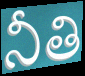
నీతి